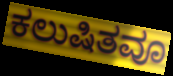
ಕಲುಷಿತವೂ